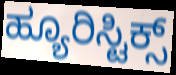
ಹ್ಯೂರಿಸ್ಟಿಕ್ಸ್